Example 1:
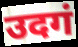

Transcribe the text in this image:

उदगं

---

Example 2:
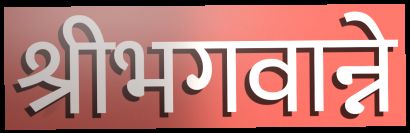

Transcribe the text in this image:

श्रीभगवान्ने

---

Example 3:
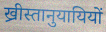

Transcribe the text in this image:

ख्रीस्तानुयायियों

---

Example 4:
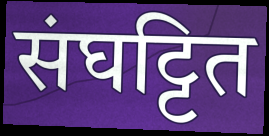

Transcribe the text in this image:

संघट्टित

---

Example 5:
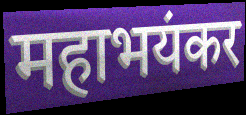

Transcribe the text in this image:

महाभयंकर